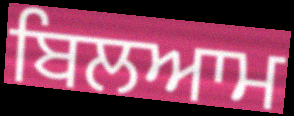
ਬਿਲਆਮ